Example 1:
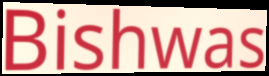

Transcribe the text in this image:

Bishwas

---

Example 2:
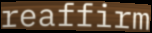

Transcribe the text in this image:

reaffirm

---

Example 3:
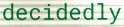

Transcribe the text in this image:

decidedly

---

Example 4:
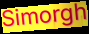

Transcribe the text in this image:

Simorgh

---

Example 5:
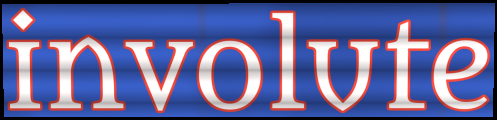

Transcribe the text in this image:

involute